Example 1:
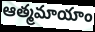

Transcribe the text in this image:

ఆత్మమాయాం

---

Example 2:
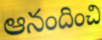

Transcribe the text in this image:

ఆనందించి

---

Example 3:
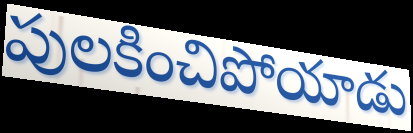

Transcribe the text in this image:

పులకించిపోయాడు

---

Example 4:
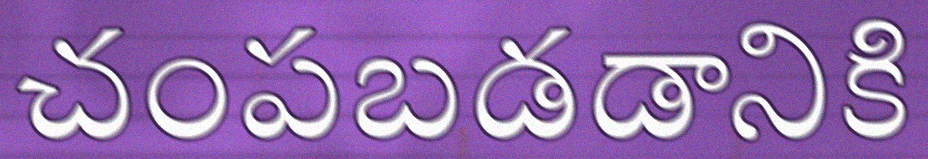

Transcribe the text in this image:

చంపబడడానికి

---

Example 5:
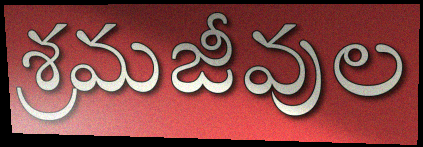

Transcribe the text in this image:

శ్రమజీవుల